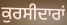
ਕੁਰਸੀਦਾਰਾਂ